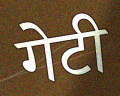
गेटी